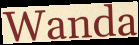
Wanda